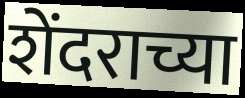
शेंदराच्या